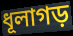
ধূলাগড়